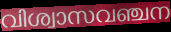
വിശ്വാസവഞ്ചന